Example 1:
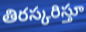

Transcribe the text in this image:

తిరస్కరిస్తూ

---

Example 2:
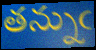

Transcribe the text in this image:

తన్నుఁ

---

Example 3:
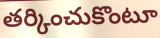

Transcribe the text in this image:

తర్కించుకొంటూ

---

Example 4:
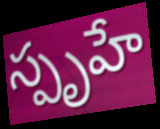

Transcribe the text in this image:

స్పృహే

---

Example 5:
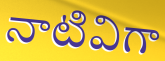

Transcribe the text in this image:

నాటివిగా